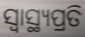
ସ୍ବାସ୍ଥ୍ୟପ୍ରତି